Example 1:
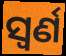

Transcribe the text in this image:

ସ୍ୱର୍ଣ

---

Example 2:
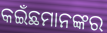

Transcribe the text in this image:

କଇଁଛମାନଙ୍କର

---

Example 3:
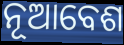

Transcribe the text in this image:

ନୂଆବେଶ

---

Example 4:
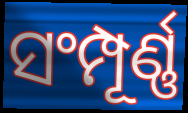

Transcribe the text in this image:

ସଂମ୍ପୂର୍ଣ୍ଣ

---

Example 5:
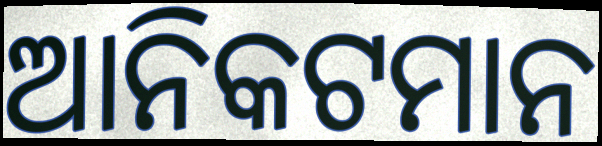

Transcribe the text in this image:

ଆନିକଟମାନ